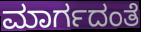
ಮಾರ್ಗದಂತೆ